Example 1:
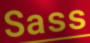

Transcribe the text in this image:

Sass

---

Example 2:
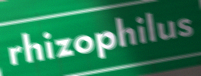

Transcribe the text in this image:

rhizophilus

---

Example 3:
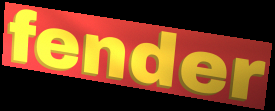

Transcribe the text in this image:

fender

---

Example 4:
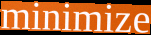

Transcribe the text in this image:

minimize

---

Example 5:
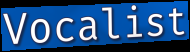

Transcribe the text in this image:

Vocalist